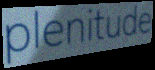
plenitude